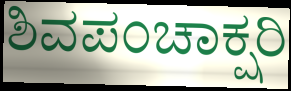
ಶಿವಪಂಚಾಕ್ಷರಿ